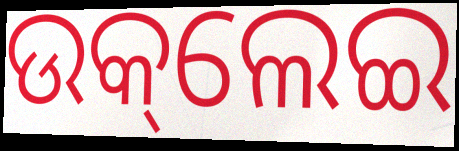
ଉକ୍‌ଲେଇ